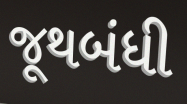
જૂથબંધી